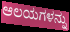
ಆಲಯಗಳನ್ನು